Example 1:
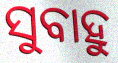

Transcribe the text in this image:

ସୁବାହୁ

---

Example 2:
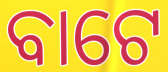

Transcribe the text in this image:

ବାଟେ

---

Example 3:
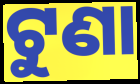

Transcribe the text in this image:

ଟୁଣା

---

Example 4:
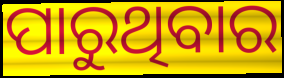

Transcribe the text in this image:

ପାରୁଥିବାର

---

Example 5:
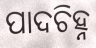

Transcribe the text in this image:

ପାଦଚିହ୍ନ